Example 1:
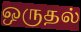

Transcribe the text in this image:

ஒருதல்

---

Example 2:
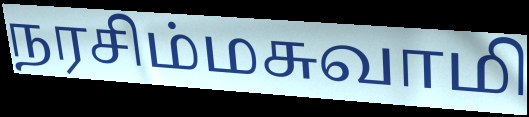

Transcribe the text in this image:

நரசிம்மசுவாமி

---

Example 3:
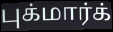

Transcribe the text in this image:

புக்மார்க்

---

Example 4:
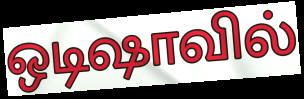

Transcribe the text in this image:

ஒடிஷாவில்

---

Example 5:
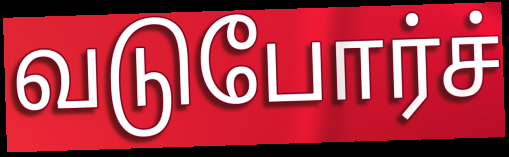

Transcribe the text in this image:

வடுபோர்ச்